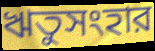
ঋতুসংহার